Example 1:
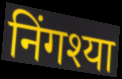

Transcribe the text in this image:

निंगश्या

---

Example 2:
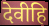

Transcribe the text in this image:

देवीहि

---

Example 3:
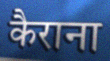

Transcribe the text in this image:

कैराना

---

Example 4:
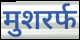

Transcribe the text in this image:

मुशरर्फ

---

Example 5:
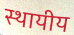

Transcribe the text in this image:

स्थायीय